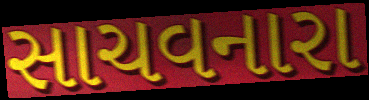
સાચવનારા